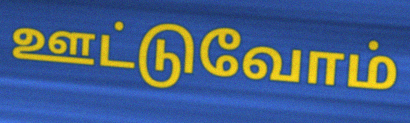
ஊட்டுவோம்